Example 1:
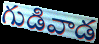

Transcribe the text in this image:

గుడివాడ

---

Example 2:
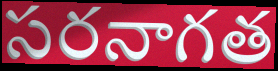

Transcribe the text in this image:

సరనాగత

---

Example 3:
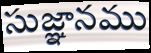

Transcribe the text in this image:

సుజ్ఞానము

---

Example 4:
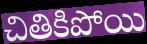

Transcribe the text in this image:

చితికిపోయి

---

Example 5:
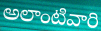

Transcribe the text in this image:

అలాంటివారి